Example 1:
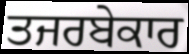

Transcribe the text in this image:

ਤਜਰਬੇਕਾਰ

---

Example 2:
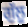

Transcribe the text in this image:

ਗੁੱਲੂ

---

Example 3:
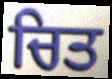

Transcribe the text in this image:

ਚਿਤ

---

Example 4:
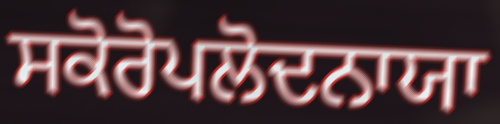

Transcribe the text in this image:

ਸਕੋਰੋਪਲੋਦਨਾਯਾ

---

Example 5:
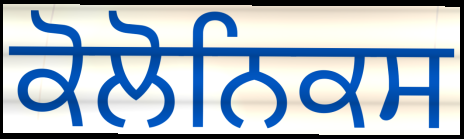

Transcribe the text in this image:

ਕੋਲੋਨਿਕਸ